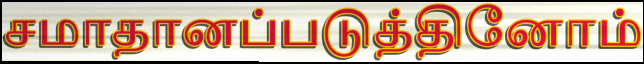
சமாதானப்படுத்தினோம்